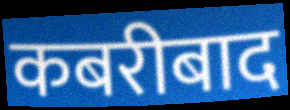
कबरीबाद